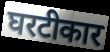
घरटीकार